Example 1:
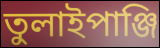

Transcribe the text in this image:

তুলাইপাঞ্জি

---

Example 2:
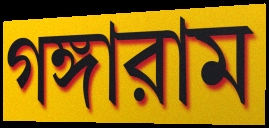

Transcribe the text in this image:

গঙ্গারাম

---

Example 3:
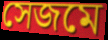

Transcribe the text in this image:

সেজমে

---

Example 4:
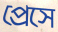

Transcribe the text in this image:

প্রেসে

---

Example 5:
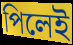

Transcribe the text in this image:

পিলেই